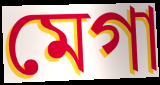
মেগা